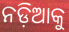
ନଡ଼ିଆକୁ